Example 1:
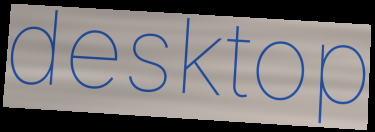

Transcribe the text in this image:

desktop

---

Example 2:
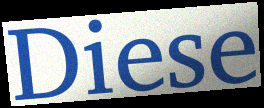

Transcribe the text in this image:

Diese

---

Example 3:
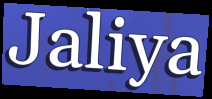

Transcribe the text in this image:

Jaliya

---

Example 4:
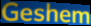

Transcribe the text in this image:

Geshem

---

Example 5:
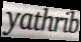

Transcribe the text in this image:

yathrib